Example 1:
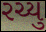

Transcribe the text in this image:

રચ્યુ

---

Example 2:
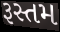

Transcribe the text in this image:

રૂસ્તમ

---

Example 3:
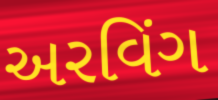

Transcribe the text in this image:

અરવિંગ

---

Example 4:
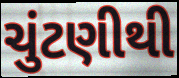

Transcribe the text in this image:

ચુંટણીથી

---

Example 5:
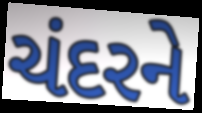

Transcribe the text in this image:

ચંદરને